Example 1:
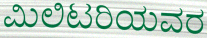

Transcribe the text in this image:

ಮಿಲಿಟರಿಯವರ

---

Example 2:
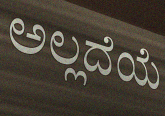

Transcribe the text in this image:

ಅಲ್ಲದೆಯೆ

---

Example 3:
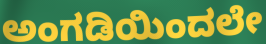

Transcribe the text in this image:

ಅಂಗಡಿಯಿಂದಲೇ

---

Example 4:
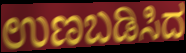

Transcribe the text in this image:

ಉಣಬಡಿಸಿದ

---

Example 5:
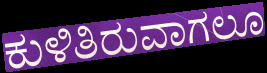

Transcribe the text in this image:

ಕುಳಿತಿರುವಾಗಲೂ